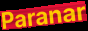
Paranar